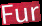
Fur